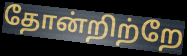
தோன்றிற்றே